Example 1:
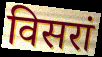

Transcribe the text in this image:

विसरां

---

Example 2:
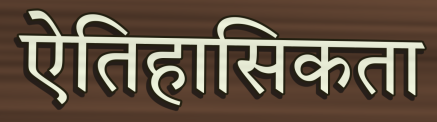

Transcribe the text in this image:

ऐतिहासिकता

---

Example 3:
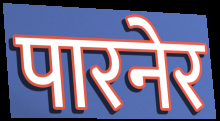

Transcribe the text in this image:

पारनेर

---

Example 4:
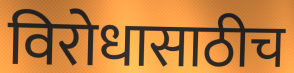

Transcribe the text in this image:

विरोधासाठीच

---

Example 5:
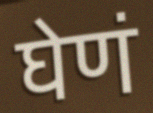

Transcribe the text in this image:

घेणं